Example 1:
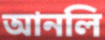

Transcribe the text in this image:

আনলি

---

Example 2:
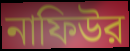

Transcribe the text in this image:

নাফিউর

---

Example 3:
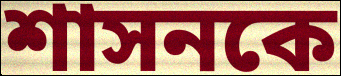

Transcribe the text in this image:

শাসনকে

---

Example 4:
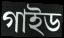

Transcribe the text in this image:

গাইড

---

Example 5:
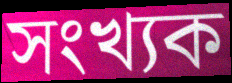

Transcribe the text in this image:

সংখ্যক